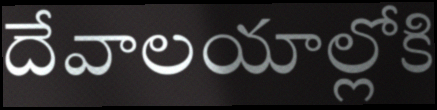
దేవాలయాల్లోకి